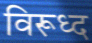
विरूध्द